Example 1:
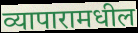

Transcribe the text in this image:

व्यापारामधील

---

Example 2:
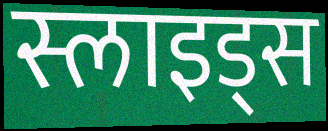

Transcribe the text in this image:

स्लाइड्स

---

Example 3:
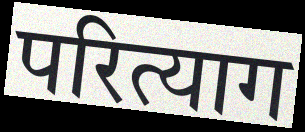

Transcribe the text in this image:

परित्याग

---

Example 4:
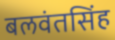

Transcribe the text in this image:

बलवंतसिंह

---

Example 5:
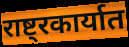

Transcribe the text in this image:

राष्ट्रकार्यात